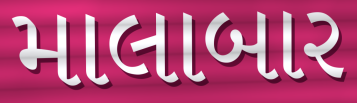
માલાબાર